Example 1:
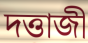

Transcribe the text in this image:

দত্তাজী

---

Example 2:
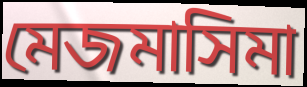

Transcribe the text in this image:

মেজমাসিমা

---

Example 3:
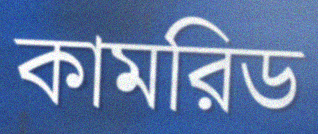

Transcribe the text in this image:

কামরিড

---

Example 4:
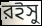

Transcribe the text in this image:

রইসু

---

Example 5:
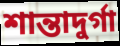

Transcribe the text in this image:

শান্তাদুর্গা